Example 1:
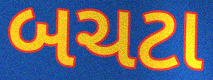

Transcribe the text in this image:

બચટા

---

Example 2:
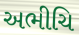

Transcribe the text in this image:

અભીચિ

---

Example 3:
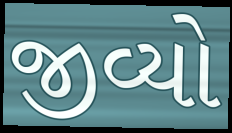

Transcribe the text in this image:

જીવ્યો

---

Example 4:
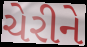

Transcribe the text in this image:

ચેરીને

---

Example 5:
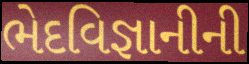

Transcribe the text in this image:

ભેદવિજ્ઞાનીની